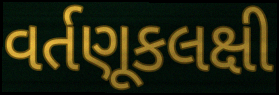
વર્તણૂકલક્ષી